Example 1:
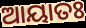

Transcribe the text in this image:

ଆୟାତଃ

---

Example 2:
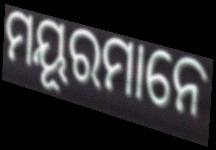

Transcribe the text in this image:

ମୟୂରମାନେ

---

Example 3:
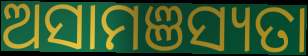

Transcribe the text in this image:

ଅସାମଞସ୍ୟତା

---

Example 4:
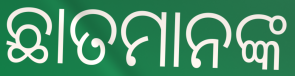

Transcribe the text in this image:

ଛାତମାନଙ୍କ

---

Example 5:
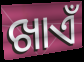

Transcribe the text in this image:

ଖାଏଁ